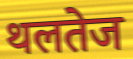
थलतेज